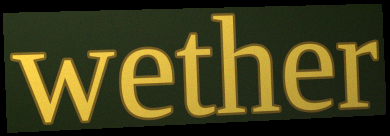
wether